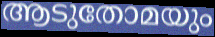
ആടുതോമയും